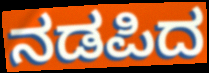
ನಡಪಿದ